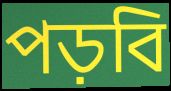
পড়বি